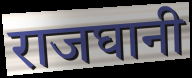
राजघानी